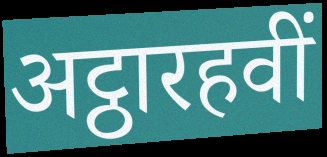
अट्ठारहवीं